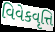
વિવેકવૃત્તિ